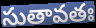
సుతావతః